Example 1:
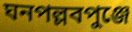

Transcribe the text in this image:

ঘনপল্লবপুঞ্জে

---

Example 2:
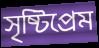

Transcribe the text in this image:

সৃষ্টিপ্রেম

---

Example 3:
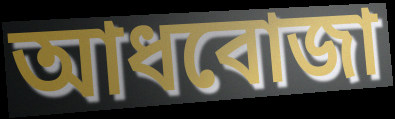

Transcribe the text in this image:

আধবোজা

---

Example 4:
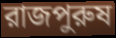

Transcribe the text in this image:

রাজপুরুষ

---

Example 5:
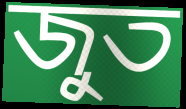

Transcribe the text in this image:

জুত